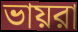
ভায়রা